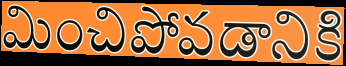
మించిపోవడానికి